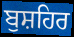
ਬੁਸ਼ਹਿਰ